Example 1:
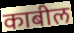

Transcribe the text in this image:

काबील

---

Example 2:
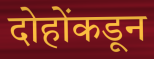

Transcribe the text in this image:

दोहोंकडून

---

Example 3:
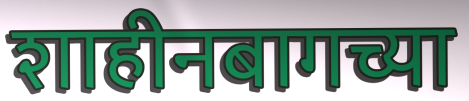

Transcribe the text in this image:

शाहीनबागच्या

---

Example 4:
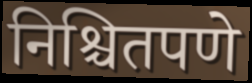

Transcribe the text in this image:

निश्चितपणे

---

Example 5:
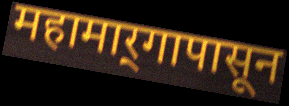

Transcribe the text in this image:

महामार्गापासून